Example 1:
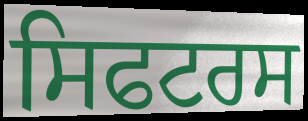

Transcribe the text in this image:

ਸਿਫਟਰਸ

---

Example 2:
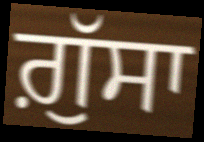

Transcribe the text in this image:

ਗ਼ੁੱਸਾ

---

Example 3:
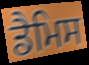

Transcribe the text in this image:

ਡੈਮਿਸ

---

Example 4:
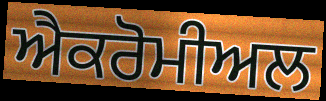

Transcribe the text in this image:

ਐਕਰੋਮੀਅਲ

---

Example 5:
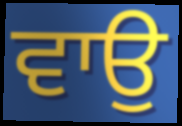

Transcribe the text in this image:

ਵਾਉ